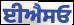
ਈਐਸਓ